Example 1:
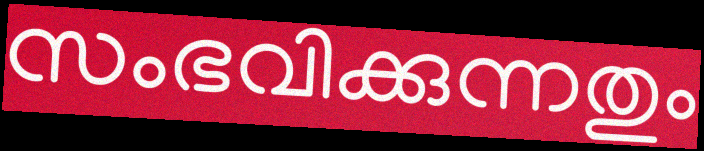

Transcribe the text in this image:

സംഭവിക്കുന്നതും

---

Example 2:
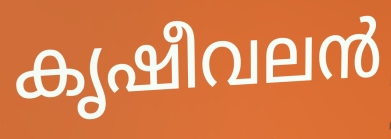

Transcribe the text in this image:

കൃഷീവലൻ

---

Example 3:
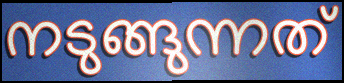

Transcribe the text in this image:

നടുങ്ങുന്നത്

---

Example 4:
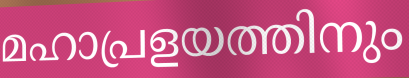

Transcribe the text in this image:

മഹാപ്രളയത്തിനും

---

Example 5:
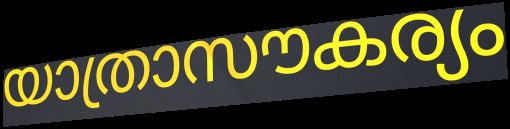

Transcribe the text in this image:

യാത്രാസൗകര്യം